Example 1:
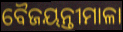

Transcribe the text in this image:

ବୈଜୟନ୍ତୀମାଳା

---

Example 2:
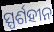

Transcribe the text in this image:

ସ୍ପର୍ଶହୀନ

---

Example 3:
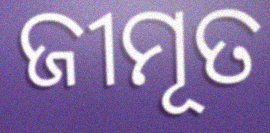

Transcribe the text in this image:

ଜୀମୂତ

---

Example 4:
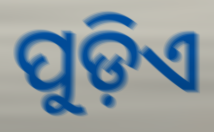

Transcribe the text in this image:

ପୁଡ଼ିଏ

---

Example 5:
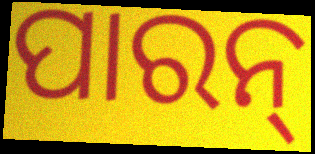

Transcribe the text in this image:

ପାରନ୍